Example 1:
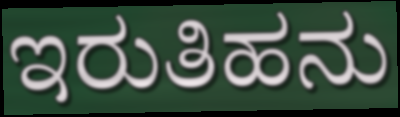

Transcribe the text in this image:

ಇರುತಿಹನು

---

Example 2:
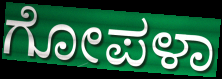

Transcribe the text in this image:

ಗೋಪಳಾ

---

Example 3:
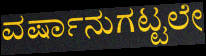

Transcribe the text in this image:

ವರ್ಷಾನುಗಟ್ಟಲೇ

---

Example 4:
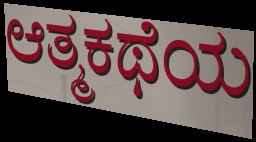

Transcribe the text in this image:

ಆತ್ಮಕಥೆಯ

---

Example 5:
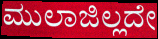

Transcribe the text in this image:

ಮುಲಾಜಿಲ್ಲದೇ